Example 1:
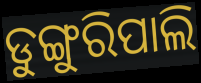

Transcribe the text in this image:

ଡୁଙ୍ଗୁରିପାଲି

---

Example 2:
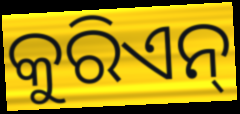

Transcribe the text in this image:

କୁରିଏନ୍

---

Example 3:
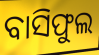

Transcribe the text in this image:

ବାସିଫୁଲ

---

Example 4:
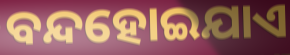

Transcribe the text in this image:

ବନ୍ଦହୋଇଯାଏ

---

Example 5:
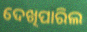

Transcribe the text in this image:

ଦେଖିପାରିଲ